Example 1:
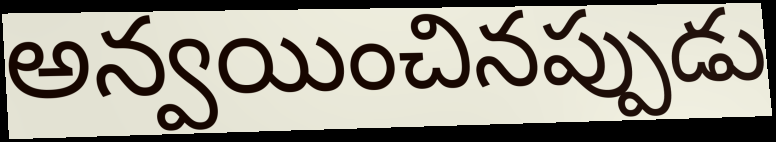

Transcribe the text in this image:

అన్వయించినప్పుడు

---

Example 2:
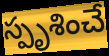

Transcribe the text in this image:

స్పృశించే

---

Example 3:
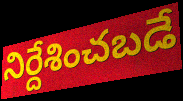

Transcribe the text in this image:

నిర్దేశించబడే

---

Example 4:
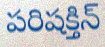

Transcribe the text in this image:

పరిషక్తిన్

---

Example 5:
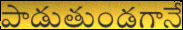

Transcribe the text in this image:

పాడుతుండగానే